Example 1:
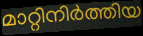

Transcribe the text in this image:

മാറ്റിനിർത്തിയ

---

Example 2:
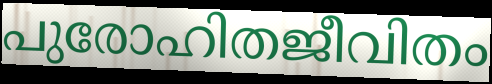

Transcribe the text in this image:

പുരോഹിതജീവിതം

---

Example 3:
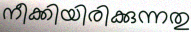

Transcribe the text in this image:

നീക്കിയിരിക്കുന്നതു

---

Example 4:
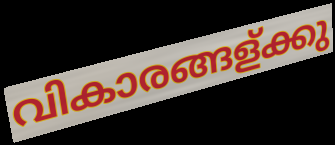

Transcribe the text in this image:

വികാരങ്ങള്ക്കു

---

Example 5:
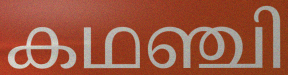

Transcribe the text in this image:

കഥഞ്ചി